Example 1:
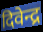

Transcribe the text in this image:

दिवेन्द्र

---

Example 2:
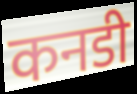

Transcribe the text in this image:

कनडी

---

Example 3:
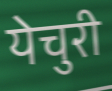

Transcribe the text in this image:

येचुरी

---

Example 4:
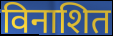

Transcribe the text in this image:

विनाशित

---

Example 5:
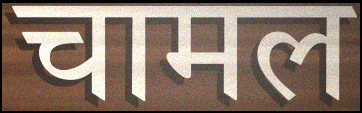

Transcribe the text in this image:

चामल